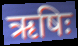
ऋषिः